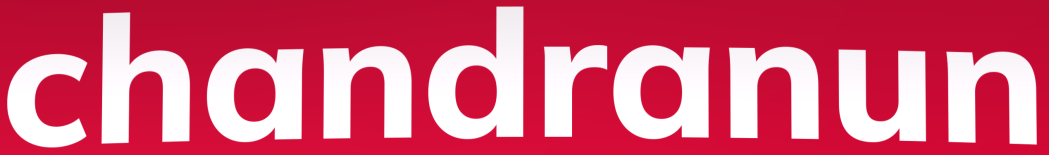
chandranun